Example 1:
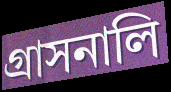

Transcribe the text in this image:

গ্রাসনালি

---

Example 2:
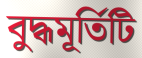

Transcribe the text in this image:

বুদ্ধমূর্তিটি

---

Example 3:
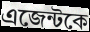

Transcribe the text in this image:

এজেন্টকে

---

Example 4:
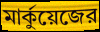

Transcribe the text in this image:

মার্কুয়েজের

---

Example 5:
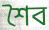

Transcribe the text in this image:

শৈব